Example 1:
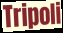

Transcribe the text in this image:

Tripoli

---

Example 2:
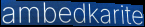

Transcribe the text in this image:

ambedkarite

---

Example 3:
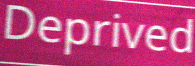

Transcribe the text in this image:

Deprived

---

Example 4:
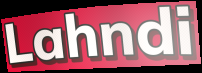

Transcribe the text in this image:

Lahndi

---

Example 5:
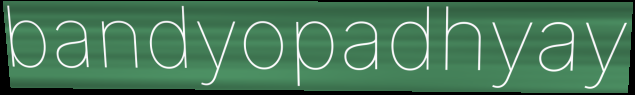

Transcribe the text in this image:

bandyopadhyay